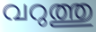
വറുത്തു